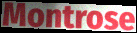
Montrose